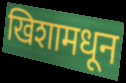
खिशामधून